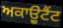
ਅਕਾਉੂਂਟੈਂਟ